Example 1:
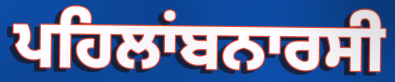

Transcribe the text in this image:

ਪਹਿਲਾਂਬਨਾਰਸੀ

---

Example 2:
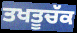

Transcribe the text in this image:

ਤਖਤੂਚੱਕ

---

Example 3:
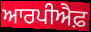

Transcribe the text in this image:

ਆਰਪੀਐਫ਼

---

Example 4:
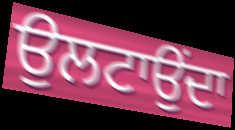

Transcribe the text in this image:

ਉਲਟਾਉਂਦਾ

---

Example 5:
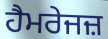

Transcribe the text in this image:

ਹੈਮਰੇਜਜ਼